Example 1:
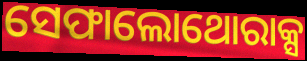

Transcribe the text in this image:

ସେଫାଲୋଥୋରାକ୍ସ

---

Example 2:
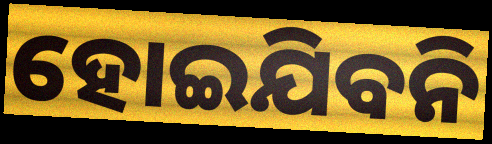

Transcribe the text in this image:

ହୋଇଯିବନି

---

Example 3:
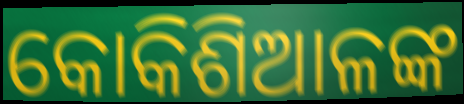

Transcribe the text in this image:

କୋକିଶିଆଳଙ୍କ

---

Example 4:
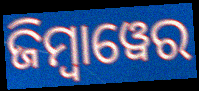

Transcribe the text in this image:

ଜିମ୍ୱାୱେର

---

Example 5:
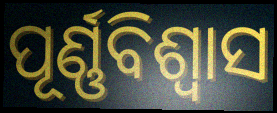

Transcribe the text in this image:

ପୂର୍ଣ୍ଣବିଶ୍ଵାସ